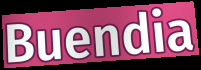
Buendia